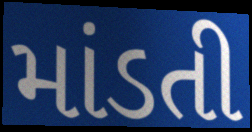
માંડતી